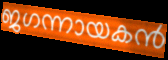
ജഗന്നായകൻ